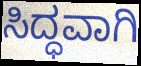
ಸಿದ್ಧವಾಗಿ